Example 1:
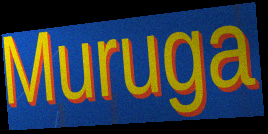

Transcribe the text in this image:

Muruga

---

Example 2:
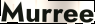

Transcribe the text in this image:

Murree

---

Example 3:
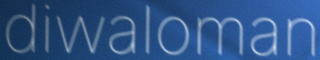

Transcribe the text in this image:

diwaloman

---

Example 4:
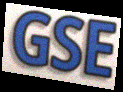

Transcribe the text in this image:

GSE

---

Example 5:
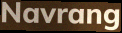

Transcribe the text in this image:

Navrang